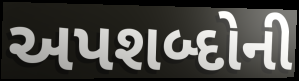
અપશબ્દોની